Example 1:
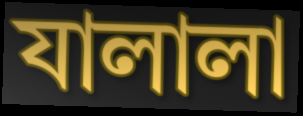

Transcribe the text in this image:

যালালা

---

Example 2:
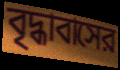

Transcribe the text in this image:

বৃদ্ধাবাসের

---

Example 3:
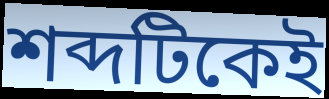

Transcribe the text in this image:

শব্দটিকেই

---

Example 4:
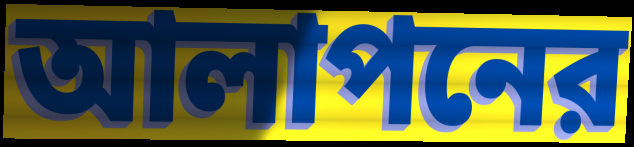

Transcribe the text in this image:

আলাপনের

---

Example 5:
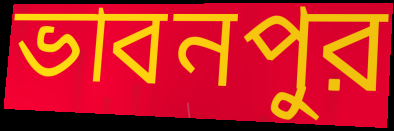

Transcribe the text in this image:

ভাবনপুর